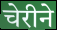
चेरीने